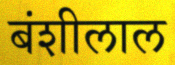
बंशीलाल